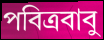
পবিত্রবাবু